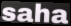
saha